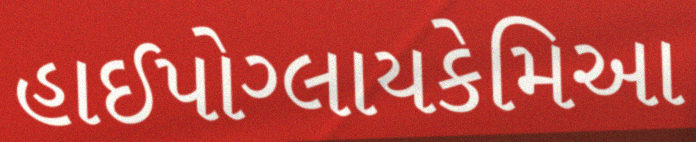
હાઈપોગ્લાયકેમિઆ